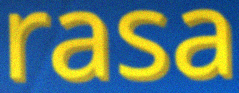
rasa